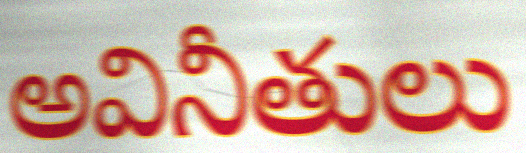
అవినీతులు